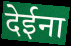
देईना